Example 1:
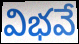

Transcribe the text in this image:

విభవే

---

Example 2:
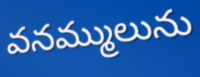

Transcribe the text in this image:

వనమ్ములును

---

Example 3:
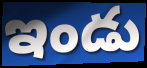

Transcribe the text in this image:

ఇండు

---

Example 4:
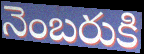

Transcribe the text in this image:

నెంబరుకి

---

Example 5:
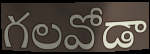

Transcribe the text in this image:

గలవోడా